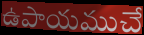
ఉపాయముచే